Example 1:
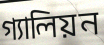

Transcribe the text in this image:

গ্যালিয়ন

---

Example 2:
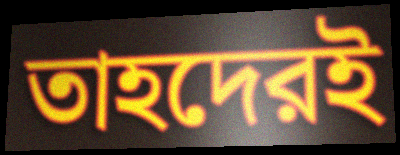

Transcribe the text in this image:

তাহদেরই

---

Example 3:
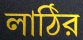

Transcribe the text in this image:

লাঠির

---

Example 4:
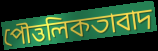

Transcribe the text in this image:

পৌত্তলিকতাবাদ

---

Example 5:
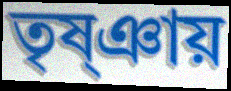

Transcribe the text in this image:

তৃষ্ঞায়